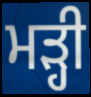
ਮੜ੍ਹੀ